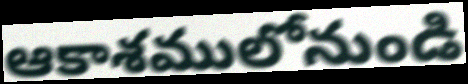
ఆకాశములోనుండి